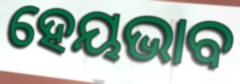
ହେୟଭାବ